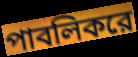
পাবলিকরে